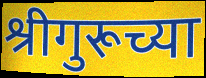
श्रीगुरूच्या